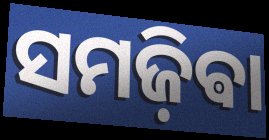
ସମଜ଼ିଵା